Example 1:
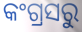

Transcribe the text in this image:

କଂଗ୍ରସରୁ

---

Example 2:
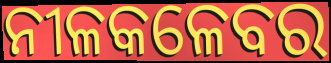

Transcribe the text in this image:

ନୀଳକଳେବର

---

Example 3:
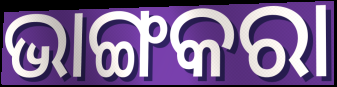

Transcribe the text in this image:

ଭାଙ୍ଗକରା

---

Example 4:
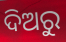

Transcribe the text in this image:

ଦିଅରୁ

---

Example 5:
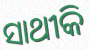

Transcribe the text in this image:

ସାଥୀକି